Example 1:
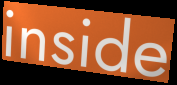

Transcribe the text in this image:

inside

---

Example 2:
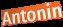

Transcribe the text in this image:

Antonin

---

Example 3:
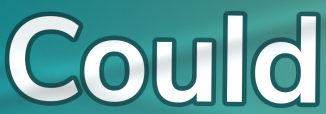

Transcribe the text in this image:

Could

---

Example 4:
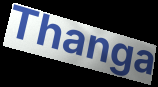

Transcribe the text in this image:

Thanga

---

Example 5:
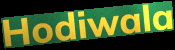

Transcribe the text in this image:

Hodiwala